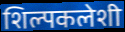
शिल्पकलेशी